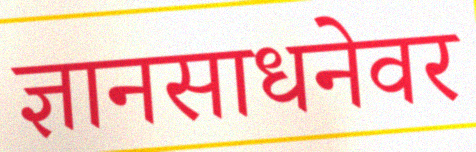
ज्ञानसाधनेवर